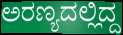
ಅರಣ್ಯದಲ್ಲಿದ್ದ